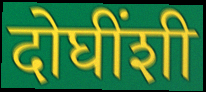
दोघींशी